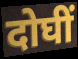
दोघीं